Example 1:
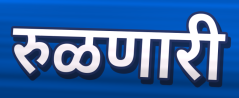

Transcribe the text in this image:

रुळणारी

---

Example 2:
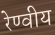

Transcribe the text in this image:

रेण्वीय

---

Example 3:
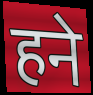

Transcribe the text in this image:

हने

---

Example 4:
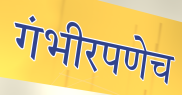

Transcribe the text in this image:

गंभीरपणेच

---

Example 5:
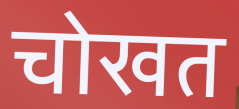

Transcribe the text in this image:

चोखत